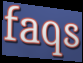
faqs